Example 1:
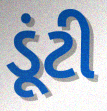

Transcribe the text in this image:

ડૂંટી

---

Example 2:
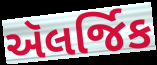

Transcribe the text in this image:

ઍલર્જિક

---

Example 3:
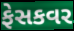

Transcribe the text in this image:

ફેસકવર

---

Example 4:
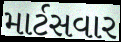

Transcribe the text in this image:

માર્ટસવાર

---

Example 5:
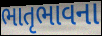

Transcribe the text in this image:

ભાતૃભાવના